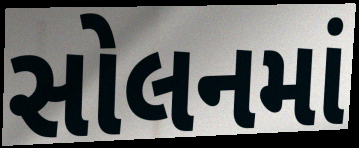
સોલનમાં